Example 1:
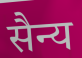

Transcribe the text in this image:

सैन्य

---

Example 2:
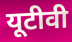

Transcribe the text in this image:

यूटीवी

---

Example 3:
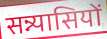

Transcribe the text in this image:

सन्न्यासियों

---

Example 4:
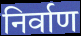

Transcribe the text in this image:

निर्वाण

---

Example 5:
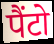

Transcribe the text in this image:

पैंटो